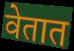
वेतात